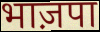
भाज़पा